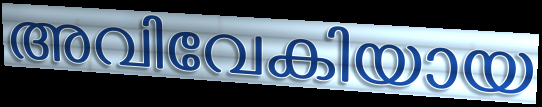
അവിവേകിയായ